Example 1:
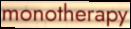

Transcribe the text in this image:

monotherapy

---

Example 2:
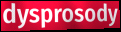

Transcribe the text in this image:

dysprosody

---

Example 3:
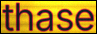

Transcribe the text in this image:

thase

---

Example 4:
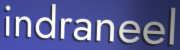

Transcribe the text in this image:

indraneel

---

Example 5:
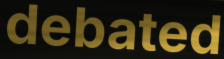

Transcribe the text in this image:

debated